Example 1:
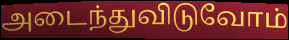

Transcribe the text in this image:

அடைந்துவிடுவோம்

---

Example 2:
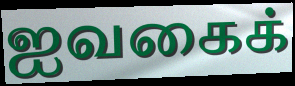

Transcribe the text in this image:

ஐவகைக்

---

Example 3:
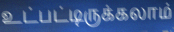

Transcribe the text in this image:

உட்பட்டிருக்கலாம்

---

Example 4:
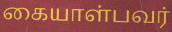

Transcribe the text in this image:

கையாள்பவர்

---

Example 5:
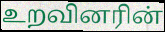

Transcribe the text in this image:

உறவினரின்